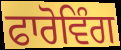
ਫਾਰੋਵਿੰਗ